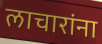
लाचारांना